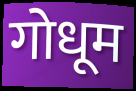
गोधूम